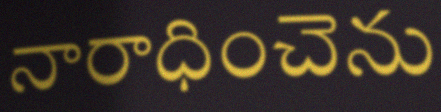
నారాధించెను